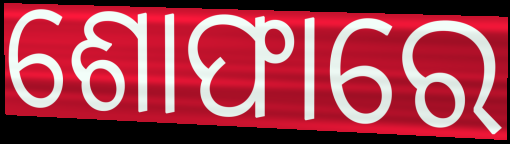
ଶୋଫାରେ